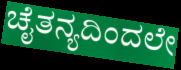
ಚೈತನ್ಯದಿಂದಲೇ